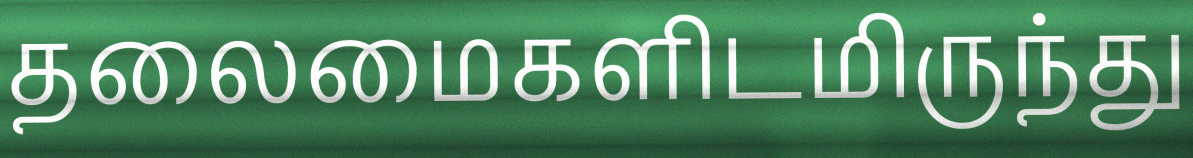
தலைமைகளிடமிருந்து